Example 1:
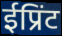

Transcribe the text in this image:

ईप्रिंट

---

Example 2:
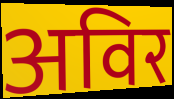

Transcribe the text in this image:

अविर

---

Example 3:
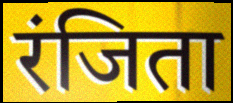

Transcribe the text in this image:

रंजिता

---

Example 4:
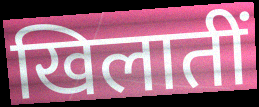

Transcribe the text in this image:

खिलातीं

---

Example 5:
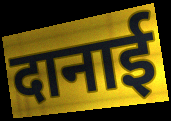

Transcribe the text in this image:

दानाई